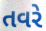
તવરે